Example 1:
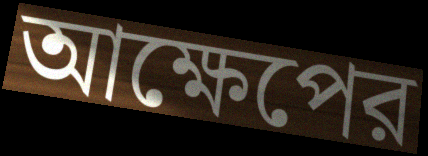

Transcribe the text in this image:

আক্ষেপের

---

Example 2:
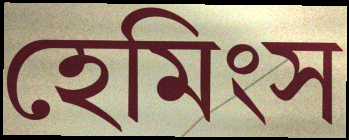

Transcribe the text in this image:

হেমিংস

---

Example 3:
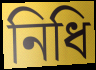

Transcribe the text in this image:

নিধি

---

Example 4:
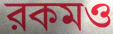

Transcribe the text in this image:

রকমও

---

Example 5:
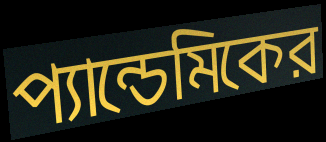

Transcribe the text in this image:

প্যান্ডেমিকের